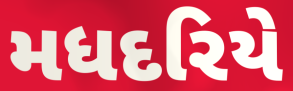
મધદરિયે